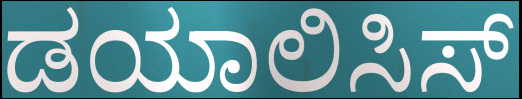
ಡಯಾಲಿಸಿಸ್